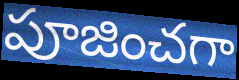
పూజించగా